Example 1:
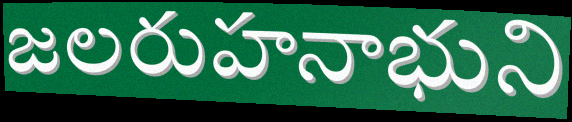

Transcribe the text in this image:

జలరుహనాభుని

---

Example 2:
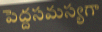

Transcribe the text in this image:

పెద్దసమస్యగా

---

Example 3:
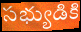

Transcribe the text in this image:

సభ్యుడికి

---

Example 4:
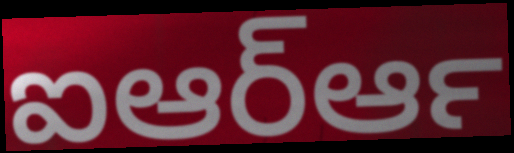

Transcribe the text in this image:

ఐఆర్ఆర్‍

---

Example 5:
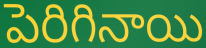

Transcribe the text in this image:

పెరిగినాయి